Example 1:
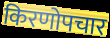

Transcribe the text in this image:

किरणोपचार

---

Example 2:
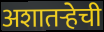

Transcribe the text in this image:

अशातऱ्हेची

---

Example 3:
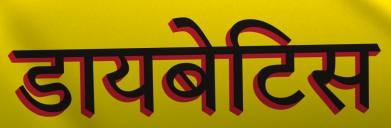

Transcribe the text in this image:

डायबेटिस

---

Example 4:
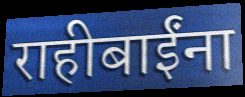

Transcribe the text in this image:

राहीबाईंना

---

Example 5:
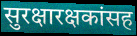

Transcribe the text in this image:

सुरक्षारक्षकांसह